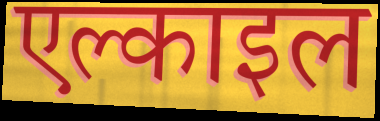
एल्काइल